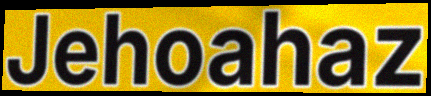
Jehoahaz